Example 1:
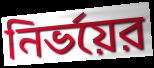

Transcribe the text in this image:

নির্ভয়ের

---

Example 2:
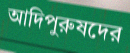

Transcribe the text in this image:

আদিপুরুষদের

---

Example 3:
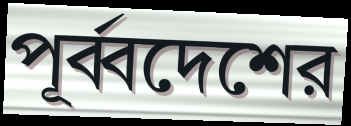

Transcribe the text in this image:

পূর্ব্বদেশের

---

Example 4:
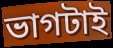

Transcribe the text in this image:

ভাগটাই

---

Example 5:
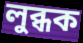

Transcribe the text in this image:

লুব্ধক